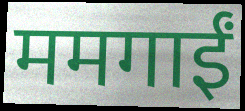
ममगाईं